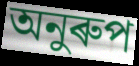
অনুৰুপ